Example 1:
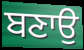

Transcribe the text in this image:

ਬਣਾਉ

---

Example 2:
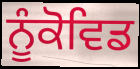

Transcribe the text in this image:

ਨੂੰਕੋਵਿਡ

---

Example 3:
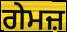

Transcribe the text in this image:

ਗੇਮਜ਼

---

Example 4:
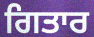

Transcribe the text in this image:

ਗਿਤਾਰ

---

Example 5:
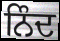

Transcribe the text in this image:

ਨਿੰਦ